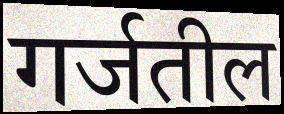
गर्जतील